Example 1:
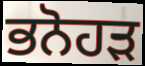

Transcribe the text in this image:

ਭਨੋਹੜ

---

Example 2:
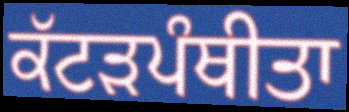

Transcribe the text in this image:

ਕੱਟੜਪੰਥੀਤਾ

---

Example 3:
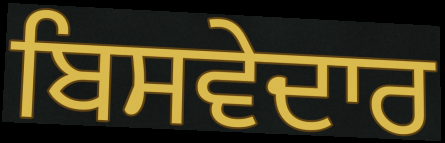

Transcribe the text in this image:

ਬਿਸਵੇਦਾਰ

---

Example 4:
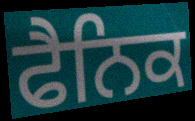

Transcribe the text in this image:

ਫੈਨਿਕ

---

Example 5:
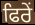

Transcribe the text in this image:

ਫਿਰੇਂ